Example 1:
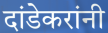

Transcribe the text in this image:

दांडेकरांनी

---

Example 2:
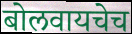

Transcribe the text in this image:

बोलवायचेच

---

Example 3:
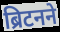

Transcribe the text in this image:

ब्रिटनने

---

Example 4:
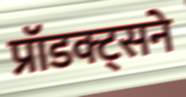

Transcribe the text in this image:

प्रॉडक्ट्सने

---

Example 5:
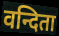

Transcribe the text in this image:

वन्दिता